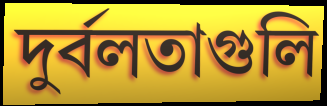
দুর্বলতাগুলি